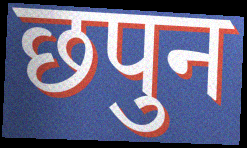
छपुन